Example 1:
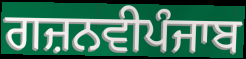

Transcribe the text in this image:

ਗਜ਼ਨਵੀਪੰਜਾਬ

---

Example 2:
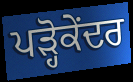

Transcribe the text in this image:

ਪੜ੍ਹੋਕੇਂਦਰ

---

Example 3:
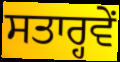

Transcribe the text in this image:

ਸਤਾਰ੍ਹਵੇਂ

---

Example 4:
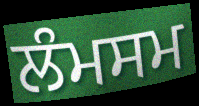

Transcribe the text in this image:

ਲੰਮਸਮ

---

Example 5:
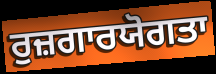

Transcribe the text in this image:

ਰੁਜ਼ਗਾਰਯੋਗਤਾ